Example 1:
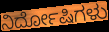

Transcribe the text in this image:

ನಿರ್ದೋಷಿಗಳು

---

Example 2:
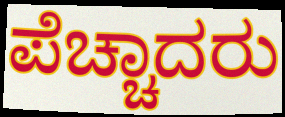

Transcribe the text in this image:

ಪೆಚ್ಚಾದರು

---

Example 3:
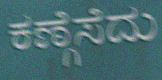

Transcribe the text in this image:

ಕಣ್ಗೆಸೆದು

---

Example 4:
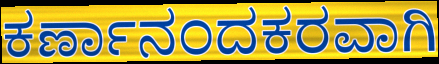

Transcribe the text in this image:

ಕರ್ಣಾನಂದಕರವಾಗಿ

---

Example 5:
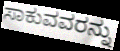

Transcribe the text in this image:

ಸಾಕುವವರನ್ನು